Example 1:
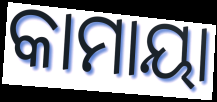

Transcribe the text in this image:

କାମାୟା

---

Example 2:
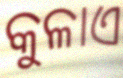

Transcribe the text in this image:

କୁଳାଏ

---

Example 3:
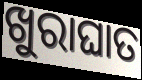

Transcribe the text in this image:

ଖୁରାଘାତ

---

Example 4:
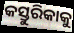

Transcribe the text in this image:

କସ୍ତୁରିକାକୁ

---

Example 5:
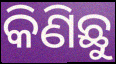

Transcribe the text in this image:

କିଣିଛୁ